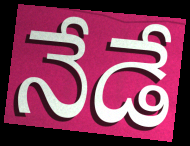
నేడే